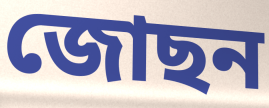
জোছন